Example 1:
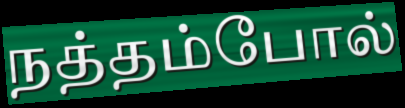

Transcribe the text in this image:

நத்தம்போல்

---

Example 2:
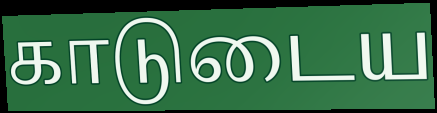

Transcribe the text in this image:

காடுடைய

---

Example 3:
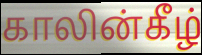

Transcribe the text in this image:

காலின்கீழ்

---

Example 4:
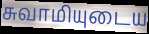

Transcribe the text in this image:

சுவாமியுடைய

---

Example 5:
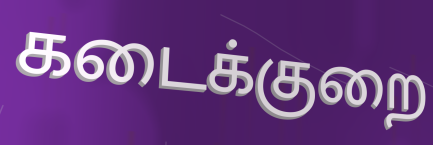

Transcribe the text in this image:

கடைக்குறை